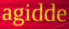
agidde